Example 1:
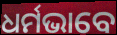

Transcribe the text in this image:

ଧର୍ମଭାବେ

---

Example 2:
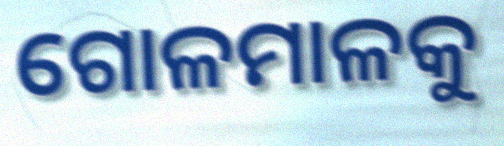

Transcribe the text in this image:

ଗୋଳମାଳକୁ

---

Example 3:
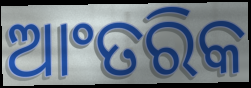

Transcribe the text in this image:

ଆଂତରିକ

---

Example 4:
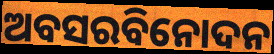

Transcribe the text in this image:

ଅବସରବିନୋଦନ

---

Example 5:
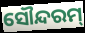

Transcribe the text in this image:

ସୌନ୍ଦରମ୍